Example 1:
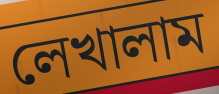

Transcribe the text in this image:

লেখালাম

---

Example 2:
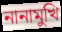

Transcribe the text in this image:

নানামুখি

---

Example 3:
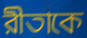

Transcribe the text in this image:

রীতাকে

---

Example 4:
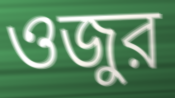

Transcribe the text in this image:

ওজুর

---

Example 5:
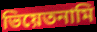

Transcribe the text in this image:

ভিয়েতনামি